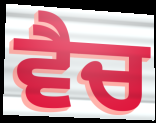
ਵੈਚ